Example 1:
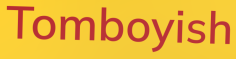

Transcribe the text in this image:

Tomboyish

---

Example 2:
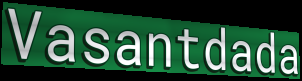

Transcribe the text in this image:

Vasantdada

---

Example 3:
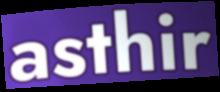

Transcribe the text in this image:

asthir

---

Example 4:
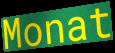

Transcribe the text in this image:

Monat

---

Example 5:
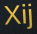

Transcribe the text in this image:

Xij